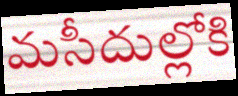
మసీదుల్లోకి